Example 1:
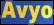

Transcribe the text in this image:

Avyo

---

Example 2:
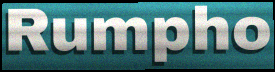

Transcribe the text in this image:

Rumpho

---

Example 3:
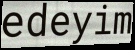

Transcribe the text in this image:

edeyim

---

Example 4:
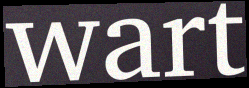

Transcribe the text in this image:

wart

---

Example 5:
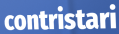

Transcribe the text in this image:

contristari